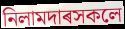
নিলামদাৰসকলে